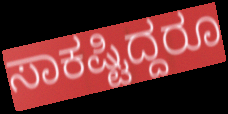
ಸಾಕಷ್ಟಿದ್ದರೂ